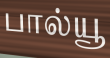
பால்யூ